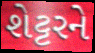
શેટ્ટરને